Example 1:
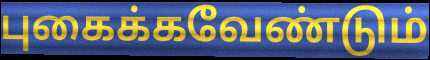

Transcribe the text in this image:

புகைக்கவேண்டும்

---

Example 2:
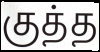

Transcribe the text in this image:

குத்த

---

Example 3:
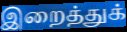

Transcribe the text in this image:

இறைத்துக்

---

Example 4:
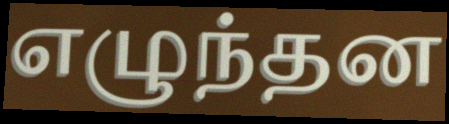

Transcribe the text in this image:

எழுந்தன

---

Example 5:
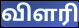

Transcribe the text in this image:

விளரி